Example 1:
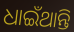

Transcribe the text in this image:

ଧାଇଁଥାନ୍ତି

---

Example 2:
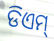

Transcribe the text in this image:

ଡିଏମ୍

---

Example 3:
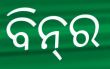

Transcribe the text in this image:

ବିନ୍‍ର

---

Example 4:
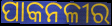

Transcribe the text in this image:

ପାକନଳୀର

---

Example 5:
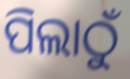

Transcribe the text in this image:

ପିଲାଠୁଁ